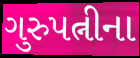
ગુરુપત્નીના